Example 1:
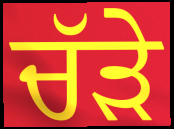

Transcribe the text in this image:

ਚੱੜੇ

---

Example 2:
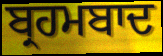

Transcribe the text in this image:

ਬ੍ਰਹਮਬਾਦ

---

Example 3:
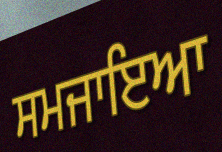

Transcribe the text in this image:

ਸਮਜਾਇਆ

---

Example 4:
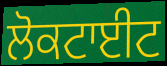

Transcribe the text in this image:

ਲੋਕਟਾਈਟ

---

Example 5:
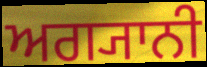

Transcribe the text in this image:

ਅਗ੍ਯਾਨੀ